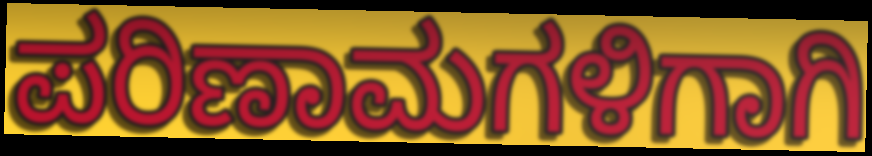
ಪರಿಣಾಮಗಳಿಗಾಗಿ